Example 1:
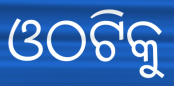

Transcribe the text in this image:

ଓଠଟିକୁ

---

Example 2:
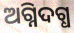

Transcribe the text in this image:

ଅଗ୍ନିଦଗ୍ଧ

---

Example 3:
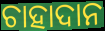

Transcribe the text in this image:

ଚାହାଦାନ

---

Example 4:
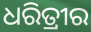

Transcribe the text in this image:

ଧରିତ୍ରୀର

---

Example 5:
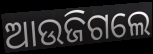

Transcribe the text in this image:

ଆଉଜିଗଲେ